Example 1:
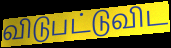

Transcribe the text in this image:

விடுபட்டுவிட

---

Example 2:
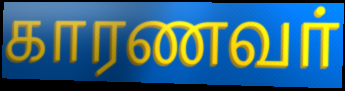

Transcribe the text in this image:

காரணவர்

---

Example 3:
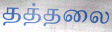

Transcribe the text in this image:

தத்தலை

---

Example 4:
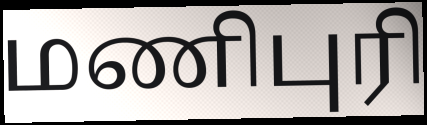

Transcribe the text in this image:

மணிபுரி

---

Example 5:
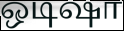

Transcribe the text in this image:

ஒடிஷா